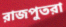
রাজপুতরা